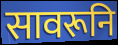
सावरूनि